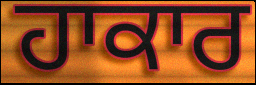
ਹਾਕਾਰ